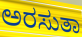
ಅರಸುತಾ